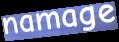
namage